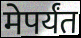
मेपर्यंत